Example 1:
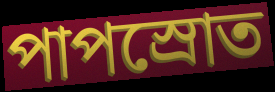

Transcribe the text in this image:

পাপস্রোত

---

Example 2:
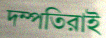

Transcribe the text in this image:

দম্পতিরাই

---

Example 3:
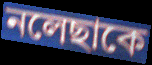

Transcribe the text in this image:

নলেছাকে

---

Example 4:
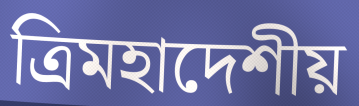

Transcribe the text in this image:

ত্রিমহাদেশীয়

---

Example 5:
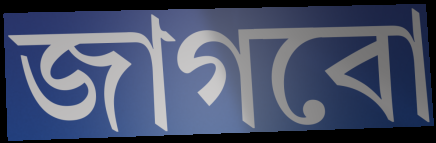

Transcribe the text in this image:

জাগবো